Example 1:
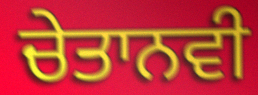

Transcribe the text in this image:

ਚੇਤਾਨਵੀ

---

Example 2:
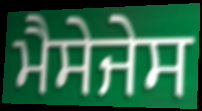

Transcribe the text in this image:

ਮੈਸੇਜੇਸ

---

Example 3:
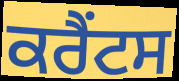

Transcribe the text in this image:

ਕਰੈਂਟਸ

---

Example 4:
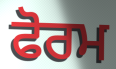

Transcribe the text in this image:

ਫੋਰਮ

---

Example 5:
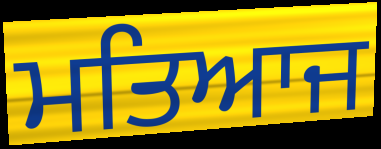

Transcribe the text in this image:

ਮਤਿਆਜ